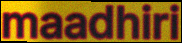
maadhiri